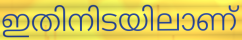
ഇതിനിടയിലാണ്